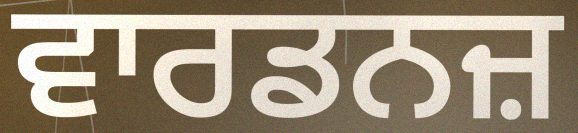
ਵਾਰਡਨਜ਼